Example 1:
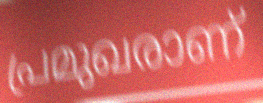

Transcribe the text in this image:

പ്രമുഖരാണ്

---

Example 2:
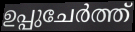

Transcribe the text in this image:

ഉപ്പുചേർത്ത്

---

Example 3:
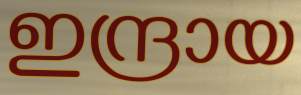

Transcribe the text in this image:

ഇന്ദ്രായ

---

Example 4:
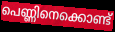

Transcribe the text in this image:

പെണ്ണിനെക്കൊണ്ട്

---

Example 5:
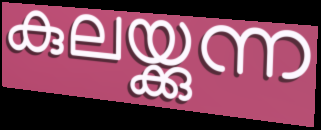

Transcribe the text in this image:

കുലയ്ക്കുന്ന